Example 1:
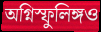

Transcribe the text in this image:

অগ্নিস্ফুলিঙ্গও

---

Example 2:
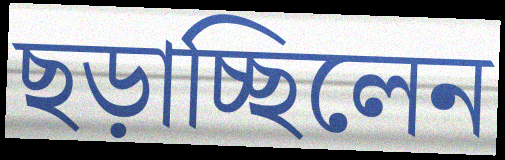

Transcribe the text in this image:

ছড়াচ্ছিলেন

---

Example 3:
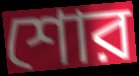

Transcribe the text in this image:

শোর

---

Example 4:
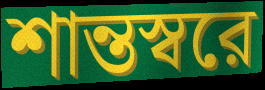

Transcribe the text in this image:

শান্তস্বরে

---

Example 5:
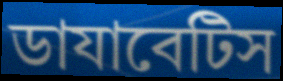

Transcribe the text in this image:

ডাযাবেটিস